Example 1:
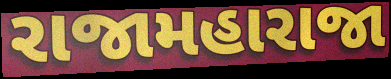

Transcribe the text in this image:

રાજામહારાજા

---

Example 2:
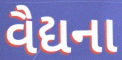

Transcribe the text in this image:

વૈદ્યના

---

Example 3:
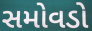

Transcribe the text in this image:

સમોવડો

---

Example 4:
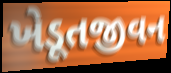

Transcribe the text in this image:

ખેડૂતજીવન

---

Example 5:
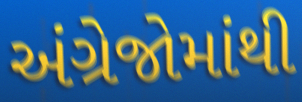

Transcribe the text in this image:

અંગ્રેજોમાંથી